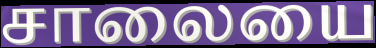
சாலையை